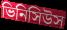
ভিনিসিউস